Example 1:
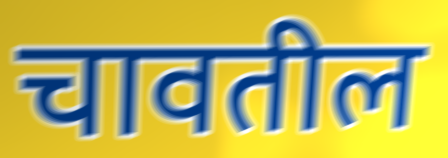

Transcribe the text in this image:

चावतील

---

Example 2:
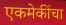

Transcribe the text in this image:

एकमेकींचा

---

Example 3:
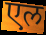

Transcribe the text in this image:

एल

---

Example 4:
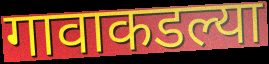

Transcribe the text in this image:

गावाकडल्या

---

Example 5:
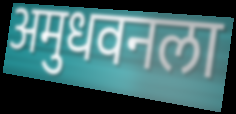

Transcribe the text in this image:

अमुधवनला